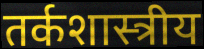
तर्कशास्त्रीय